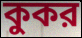
কুকর